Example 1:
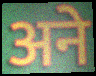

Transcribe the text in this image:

अने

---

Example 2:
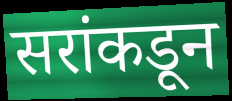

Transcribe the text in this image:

सरांकडून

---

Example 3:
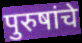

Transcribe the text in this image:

पुरुषांचे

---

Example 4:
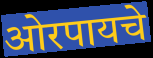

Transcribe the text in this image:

ओरपायचे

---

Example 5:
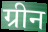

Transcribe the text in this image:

ग्रीन